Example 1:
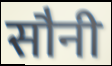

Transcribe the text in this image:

सौनी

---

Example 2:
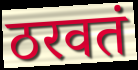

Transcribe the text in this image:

ठरवतं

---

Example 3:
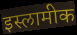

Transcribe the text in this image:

इस्लामीक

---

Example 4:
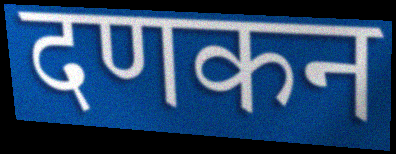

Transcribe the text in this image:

दणकन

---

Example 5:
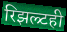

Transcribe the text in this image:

रिझल्टही